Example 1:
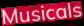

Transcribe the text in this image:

Musicals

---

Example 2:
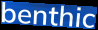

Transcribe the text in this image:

benthic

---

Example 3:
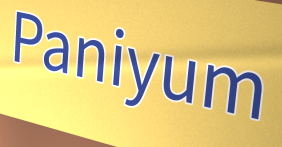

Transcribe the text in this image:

Paniyum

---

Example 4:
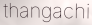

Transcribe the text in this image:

thangachi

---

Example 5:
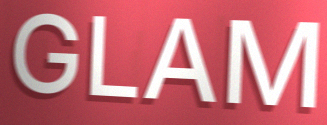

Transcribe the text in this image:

GLAM